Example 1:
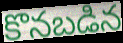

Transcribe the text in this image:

కొనబడిన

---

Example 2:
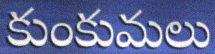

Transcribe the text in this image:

కుంకుమలు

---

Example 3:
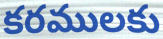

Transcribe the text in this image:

కరములకు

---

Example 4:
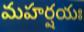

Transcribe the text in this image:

మహర్షయః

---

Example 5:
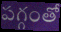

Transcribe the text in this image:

పగ్గంతో